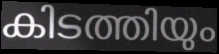
കിടത്തിയും